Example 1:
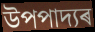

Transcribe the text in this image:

উপপাদ্যৰ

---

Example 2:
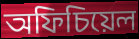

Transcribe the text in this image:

অফিচিয়েল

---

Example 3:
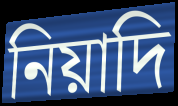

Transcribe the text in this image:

নিয়াদি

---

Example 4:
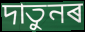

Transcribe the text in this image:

দাতুনৰ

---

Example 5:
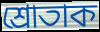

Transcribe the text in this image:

শ্ৰোতাক